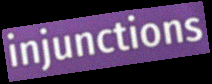
injunctions